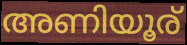
അണിയൂര്